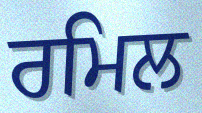
ਰਮਿਲ